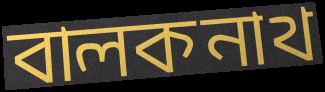
বালকনাথ